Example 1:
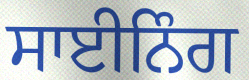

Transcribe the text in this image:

ਸਾਈਨਿੰਗ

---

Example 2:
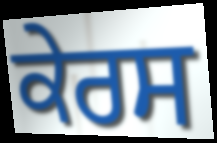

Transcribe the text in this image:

ਕੇਰਸ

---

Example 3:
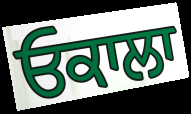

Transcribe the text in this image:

ਓਕਾਲਾ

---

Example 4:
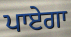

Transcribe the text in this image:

ਪਾਏਗਾ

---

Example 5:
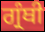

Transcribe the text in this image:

ਗ੍ਰੰਥੀ